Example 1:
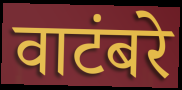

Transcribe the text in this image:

वाटंबरे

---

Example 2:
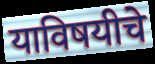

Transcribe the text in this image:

याविषयीचे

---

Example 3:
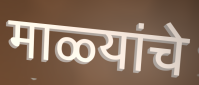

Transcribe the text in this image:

माळ्यांचे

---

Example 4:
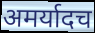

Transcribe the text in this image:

अमर्यादच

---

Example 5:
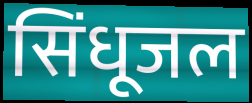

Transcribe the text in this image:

सिंधूजल